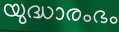
യുദ്ധാരംഭം